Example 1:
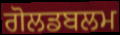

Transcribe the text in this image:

ਗੋਲਡਬਲਮ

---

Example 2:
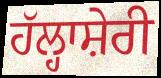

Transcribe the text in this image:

ਹੱਲ੍ਹਾਸ਼ੇਰੀ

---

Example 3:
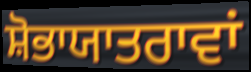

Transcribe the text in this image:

ਸ਼ੋਭਾਯਾਤਰਾਵਾਂ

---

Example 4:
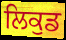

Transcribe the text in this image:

ਲਿਕੁਡ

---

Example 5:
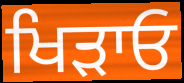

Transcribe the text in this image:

ਖਿੜਾਓ